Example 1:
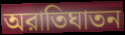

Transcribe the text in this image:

অরাতিঘাতন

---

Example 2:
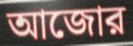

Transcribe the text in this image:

আজোর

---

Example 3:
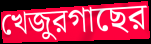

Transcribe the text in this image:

খেজুরগাছের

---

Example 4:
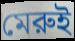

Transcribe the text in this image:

মেরুই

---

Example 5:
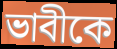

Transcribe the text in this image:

ভাবীকে